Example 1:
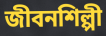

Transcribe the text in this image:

জীবনশিল্পী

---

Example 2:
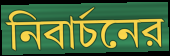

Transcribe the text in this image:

নিবার্চনের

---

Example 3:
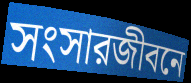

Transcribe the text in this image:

সংসারজীবনে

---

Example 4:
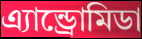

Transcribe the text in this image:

এ্যান্ড্রোমিডা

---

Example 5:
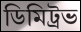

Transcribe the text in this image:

ডিমিট্রভ